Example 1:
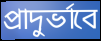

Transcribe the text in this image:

প্রাদুর্ভাবে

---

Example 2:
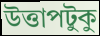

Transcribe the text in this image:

উত্তাপটুকু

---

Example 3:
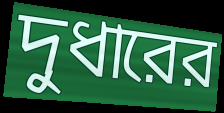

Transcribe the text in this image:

দুধারের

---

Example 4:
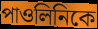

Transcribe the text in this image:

পাওলিনিকে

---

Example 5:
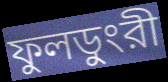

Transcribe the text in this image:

ফুলডুংরী